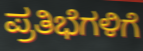
ಪ್ರತಿಭೆಗಳಿಗೆ